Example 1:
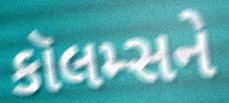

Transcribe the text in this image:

કૉલમ્સને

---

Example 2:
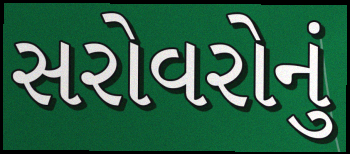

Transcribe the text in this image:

સરોવરોનું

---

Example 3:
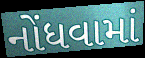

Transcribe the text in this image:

નોંધવામાં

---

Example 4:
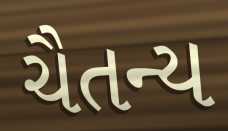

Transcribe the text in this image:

ચૈતન્ય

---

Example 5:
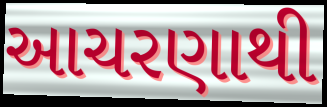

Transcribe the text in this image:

આચરણાથી